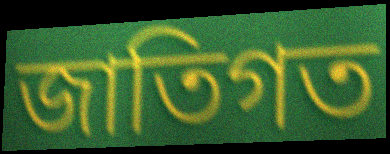
জাতিগত